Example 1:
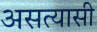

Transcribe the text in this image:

असत्यासी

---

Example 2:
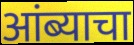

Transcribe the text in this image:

आंब्याचा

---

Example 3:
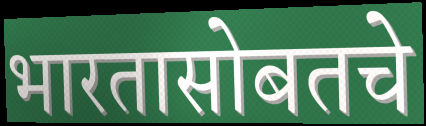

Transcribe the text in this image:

भारतासोबतचे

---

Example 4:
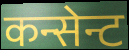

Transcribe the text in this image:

कन्सेन्ट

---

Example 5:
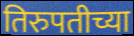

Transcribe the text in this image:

तिरुपतीच्या